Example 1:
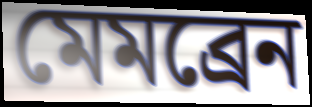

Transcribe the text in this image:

মেমব্ৰেন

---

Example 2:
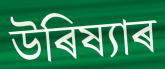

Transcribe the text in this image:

উৰিষ্যাৰ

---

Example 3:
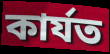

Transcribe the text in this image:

কাৰ্যত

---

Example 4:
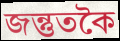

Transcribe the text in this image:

জন্তুতকৈ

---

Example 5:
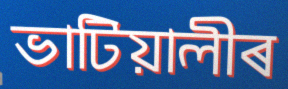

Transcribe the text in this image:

ভাটিয়ালীৰ